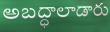
అబద్ధాలాడారు